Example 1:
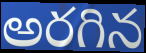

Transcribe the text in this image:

అరగిన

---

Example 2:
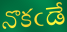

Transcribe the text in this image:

నొకఁడే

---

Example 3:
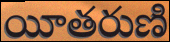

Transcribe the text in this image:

యీతరుణి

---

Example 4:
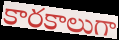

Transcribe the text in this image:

కారకాలుగా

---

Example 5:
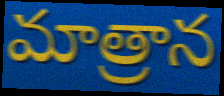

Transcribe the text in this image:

మాత్రాన